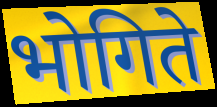
भोगिते